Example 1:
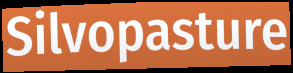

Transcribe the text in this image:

Silvopasture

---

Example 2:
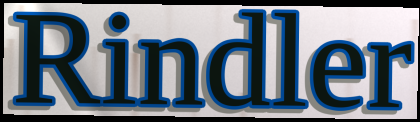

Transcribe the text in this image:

Rindler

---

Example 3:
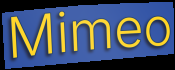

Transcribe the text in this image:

Mimeo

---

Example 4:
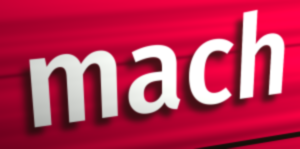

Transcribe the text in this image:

mach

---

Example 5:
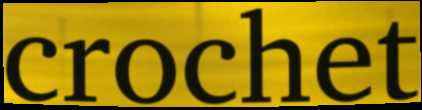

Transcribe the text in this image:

crochet